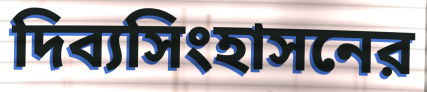
দিব্যসিংহাসনের